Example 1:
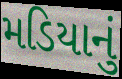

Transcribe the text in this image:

મડિયાનું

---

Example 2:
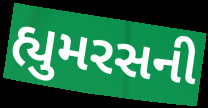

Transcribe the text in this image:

હ્યુમરસની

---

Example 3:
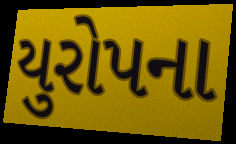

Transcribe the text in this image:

યુરોપના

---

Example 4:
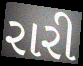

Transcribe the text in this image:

રારી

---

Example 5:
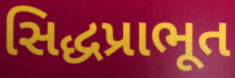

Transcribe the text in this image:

સિદ્ધપ્રાભૂત